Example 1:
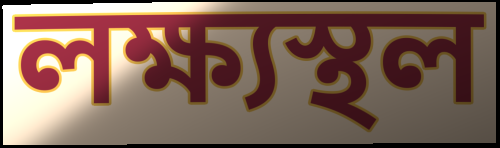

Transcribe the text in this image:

লক্ষ্যস্থল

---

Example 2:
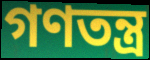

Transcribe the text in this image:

গণতন্ত্র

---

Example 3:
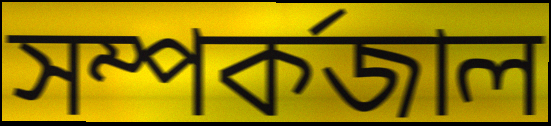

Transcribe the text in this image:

সম্পর্কজাল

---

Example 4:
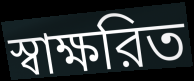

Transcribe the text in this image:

স্বাক্ষরিত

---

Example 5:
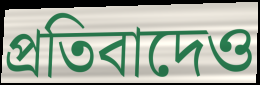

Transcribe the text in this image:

প্রতিবাদেও